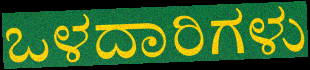
ಒಳದಾರಿಗಳು